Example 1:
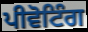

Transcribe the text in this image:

ਪੀਵੋਟਿੰਗ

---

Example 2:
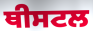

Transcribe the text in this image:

ਥੀਸਟਲ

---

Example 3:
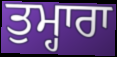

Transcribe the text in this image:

ਤੁਮ੍ਹਾਰਾ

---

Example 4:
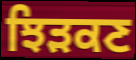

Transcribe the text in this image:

ਝਿੜਕਣ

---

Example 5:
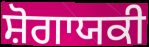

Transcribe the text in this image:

ਸ਼ੋਗਾਯਕੀ